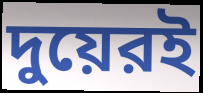
দুয়েরই